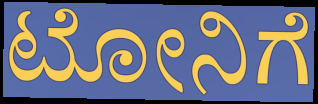
ಟೋನಿಗೆ